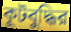
কূটবুদ্ধির